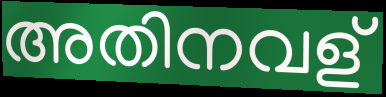
അതിനവള്